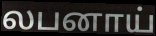
லபனாய்